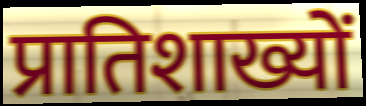
प्रातिशाख्यों